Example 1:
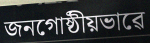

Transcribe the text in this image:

জনগোষ্ঠীয়ভাৱে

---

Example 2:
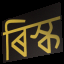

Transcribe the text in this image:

ৰিস্ক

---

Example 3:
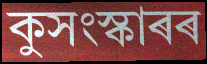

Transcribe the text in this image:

কুসংস্কাৰৰ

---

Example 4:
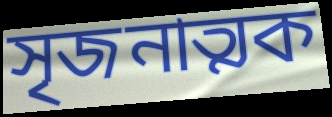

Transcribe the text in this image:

সৃজনাত্মক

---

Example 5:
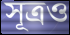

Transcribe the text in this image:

সূত্ৰও